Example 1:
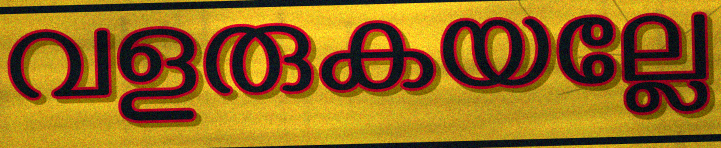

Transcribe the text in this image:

വളരുകയല്ലേ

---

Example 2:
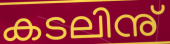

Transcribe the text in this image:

കടലിനു്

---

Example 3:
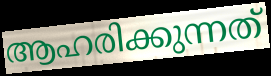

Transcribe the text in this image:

ആഹരിക്കുന്നത്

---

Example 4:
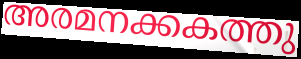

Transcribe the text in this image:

അരമനക്കകത്തു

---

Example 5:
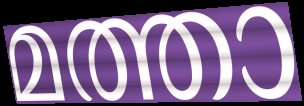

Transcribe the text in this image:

മത്താ